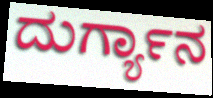
ದುರ್ಗ್ಯಾನ